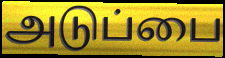
அடுப்பை